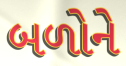
બળોને